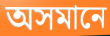
অসমানে